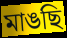
মাঙছি